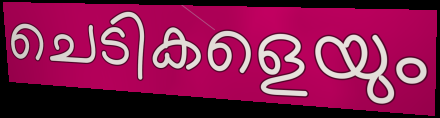
ചെടികളെയും